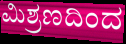
ಮಿಶ್ರಣದಿಂದ